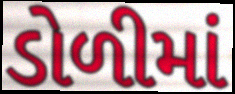
ડોળીમાં